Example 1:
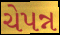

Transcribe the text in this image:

ચેપન્ન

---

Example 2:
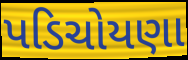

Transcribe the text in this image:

પડિચોયણા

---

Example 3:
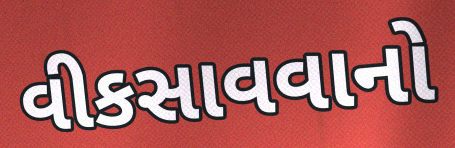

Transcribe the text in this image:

વીકસાવવાનો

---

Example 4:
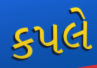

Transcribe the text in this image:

કપલે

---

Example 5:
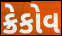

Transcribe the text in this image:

ક્રેકોવ